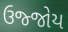
ઉજ્જોય